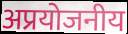
अप्रयोजनीय